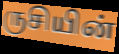
ருசியின்